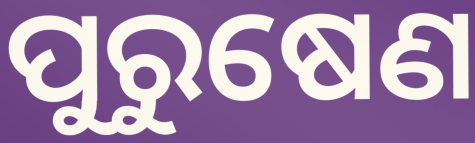
ପୁରୁଷେଣ